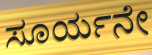
ಸೂರ್ಯನೇ